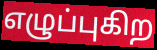
எழுப்புகிற